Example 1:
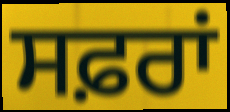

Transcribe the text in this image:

ਸਫ਼ਰਾਂ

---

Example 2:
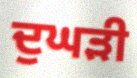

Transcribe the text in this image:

ਦੁਘੜੀ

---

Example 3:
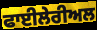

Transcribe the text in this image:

ਫਾਈਲੇਰੀਅਲ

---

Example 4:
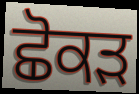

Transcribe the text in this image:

ਛੋਕੜ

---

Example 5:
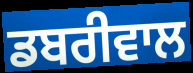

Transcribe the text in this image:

ਡਬਰੀਵਾਲ